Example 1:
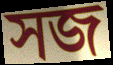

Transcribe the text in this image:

সজ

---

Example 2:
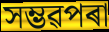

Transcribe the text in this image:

সম্ভৱপৰা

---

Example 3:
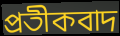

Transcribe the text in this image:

প্ৰতীকবাদ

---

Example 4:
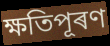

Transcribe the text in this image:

ক্ষতিপূৰণ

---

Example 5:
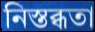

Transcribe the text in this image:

নিস্তব্ধতা